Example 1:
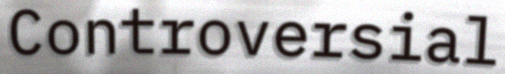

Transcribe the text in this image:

Controversial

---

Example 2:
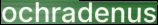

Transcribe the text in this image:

ochradenus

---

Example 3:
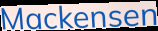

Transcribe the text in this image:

Mackensen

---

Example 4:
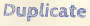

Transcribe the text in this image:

Duplicate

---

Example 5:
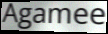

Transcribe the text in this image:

Agamee